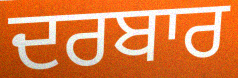
ਦਰਬਾਰ